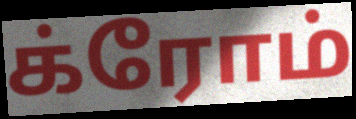
க்ரோம்